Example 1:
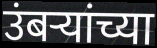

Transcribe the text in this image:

उंबऱ्यांच्या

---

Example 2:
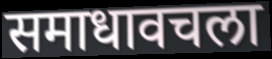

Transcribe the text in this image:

समाधावचला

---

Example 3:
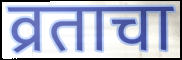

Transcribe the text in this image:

व्रताचा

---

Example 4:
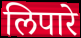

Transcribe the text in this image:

लिपारे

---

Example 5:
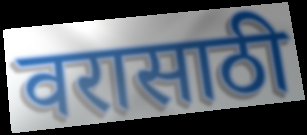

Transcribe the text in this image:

वरासाठी